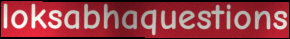
loksabhaquestions